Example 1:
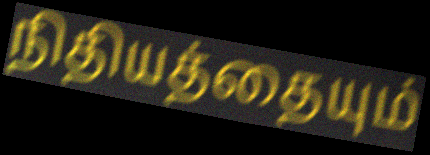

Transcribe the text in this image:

நிதியத்தையும்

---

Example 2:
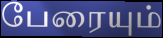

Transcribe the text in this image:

பேரையும்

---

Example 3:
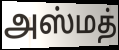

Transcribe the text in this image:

அஸ்மத்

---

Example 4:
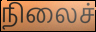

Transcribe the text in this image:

நிலைச்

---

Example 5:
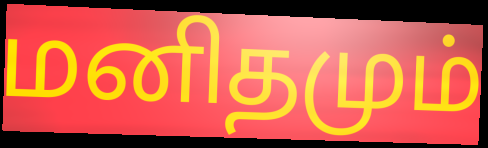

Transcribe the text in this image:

மனிதமும்